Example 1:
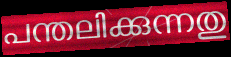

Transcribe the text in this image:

പന്തലിക്കുന്നതു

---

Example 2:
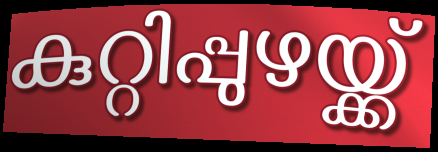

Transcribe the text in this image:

കുറ്റിപ്പുഴയ്ക്ക്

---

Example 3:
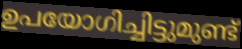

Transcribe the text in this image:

ഉപയോഗിച്ചിട്ടുമുണ്ട്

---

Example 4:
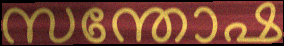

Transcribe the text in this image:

സന്തോഷ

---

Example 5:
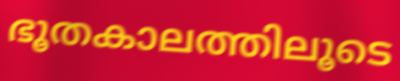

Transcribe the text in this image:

ഭൂതകാലത്തിലൂടെ